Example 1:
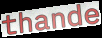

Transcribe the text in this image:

thande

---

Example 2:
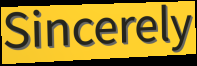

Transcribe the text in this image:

Sincerely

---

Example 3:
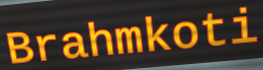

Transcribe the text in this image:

Brahmkoti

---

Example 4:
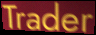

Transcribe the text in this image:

Trader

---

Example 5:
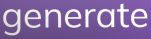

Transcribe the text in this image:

generate